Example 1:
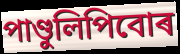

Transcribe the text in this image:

পাণ্ডুলিপিবোৰ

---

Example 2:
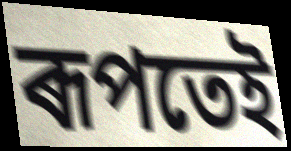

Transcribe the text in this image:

ৰূপতেই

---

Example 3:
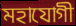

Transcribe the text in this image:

মহাযোগী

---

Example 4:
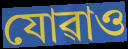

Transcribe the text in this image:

যোৱাও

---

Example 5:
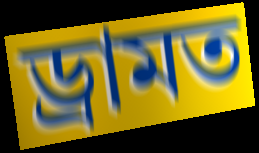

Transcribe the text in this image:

ড্ৰামত